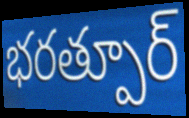
భరత్పూర్